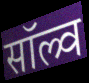
सॉल्व